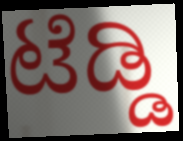
ಟೆಡ್ಡಿ